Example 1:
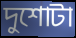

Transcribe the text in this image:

দুশোটা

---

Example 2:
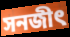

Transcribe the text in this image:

সনজীৎ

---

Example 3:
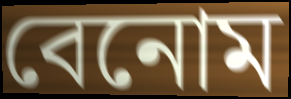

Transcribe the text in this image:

বেনোম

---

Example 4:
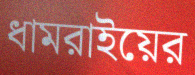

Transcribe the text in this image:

ধামরাইয়ের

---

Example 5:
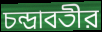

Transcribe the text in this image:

চন্দ্রাবতীর